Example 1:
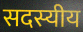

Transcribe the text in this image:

सदस्‍यीय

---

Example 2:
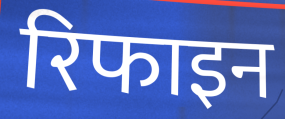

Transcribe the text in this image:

रिफाइन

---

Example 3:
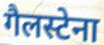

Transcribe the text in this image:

गैलस्टेना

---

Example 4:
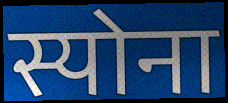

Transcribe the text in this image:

स्योना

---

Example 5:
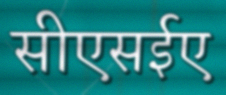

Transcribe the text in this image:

सीएसईए